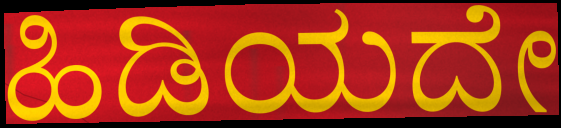
ಹಿಡಿಯದೇ